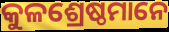
କୁଳଶ୍ରେଷ୍ଠମାନେ